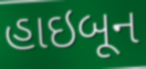
હાઇબૂન